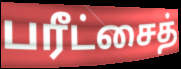
பரீட்சைத்